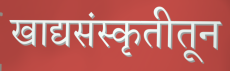
खाद्यसंस्कृतीतून